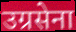
उग्रसेना